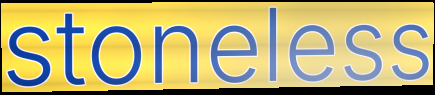
stoneless